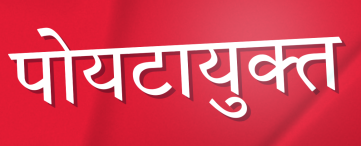
पोयटायुक्त